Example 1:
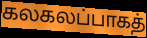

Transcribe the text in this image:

கலகலப்பாகத்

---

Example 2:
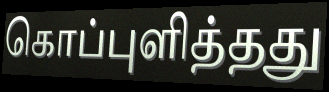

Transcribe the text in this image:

கொப்புளித்தது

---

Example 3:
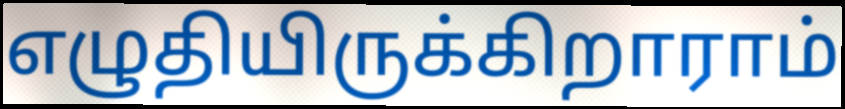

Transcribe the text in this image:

எழுதியிருக்கிறாராம்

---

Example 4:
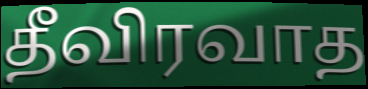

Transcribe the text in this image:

தீவிரவாத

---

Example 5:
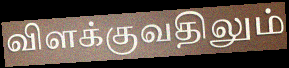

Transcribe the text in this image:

விளக்குவதிலும்